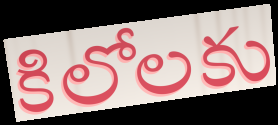
కిలోలకు